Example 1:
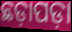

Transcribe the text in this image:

ଛଡ଼ାପଡ଼ା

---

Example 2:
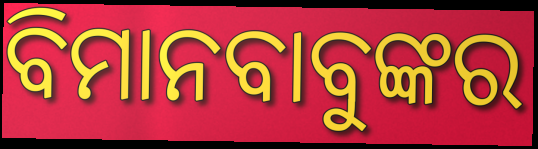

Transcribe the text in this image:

ବିମାନବାବୁଙ୍କର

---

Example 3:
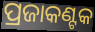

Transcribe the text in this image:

ପ୍ରଜାକଣ୍ଟକ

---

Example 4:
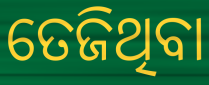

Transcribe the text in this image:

ତେଜିଥିବା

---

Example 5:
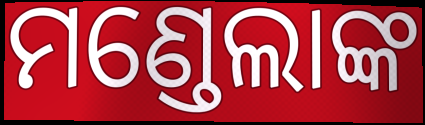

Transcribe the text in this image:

ମଣ୍ଡେଲାଙ୍କ